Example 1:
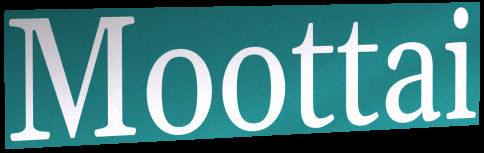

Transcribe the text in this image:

Moottai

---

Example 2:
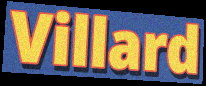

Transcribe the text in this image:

Villard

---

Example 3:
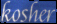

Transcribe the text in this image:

kosher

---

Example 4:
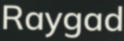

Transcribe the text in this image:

Raygad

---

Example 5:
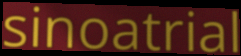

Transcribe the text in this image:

sinoatrial